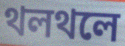
থলথলে